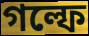
গল্ফে